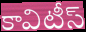
కావిటీస్